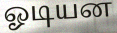
ஓடியன